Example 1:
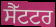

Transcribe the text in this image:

ਸੈੱਟਟਰ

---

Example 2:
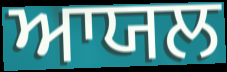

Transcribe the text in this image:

ਆਯਲ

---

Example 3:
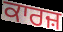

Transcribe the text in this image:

ਕਾਰਜ਼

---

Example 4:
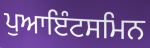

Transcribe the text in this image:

ਪੁਆਇੰਟਸਮਿਨ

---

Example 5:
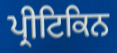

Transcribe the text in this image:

ਪ੍ਰੀਟਿਕਿਨ